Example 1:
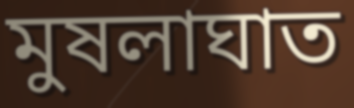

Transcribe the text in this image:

মুষলাঘাত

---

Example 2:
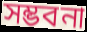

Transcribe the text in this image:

সম্ভবনা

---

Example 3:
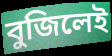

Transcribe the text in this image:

বুজিলেই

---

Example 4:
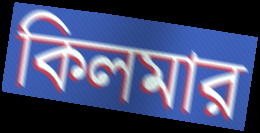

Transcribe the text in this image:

কিলমার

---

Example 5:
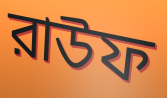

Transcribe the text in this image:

রাউফ